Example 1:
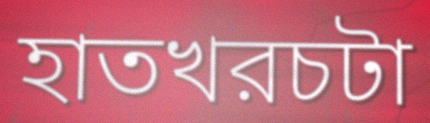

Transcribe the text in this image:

হাতখরচটা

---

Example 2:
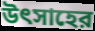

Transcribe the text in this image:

উৎসাহের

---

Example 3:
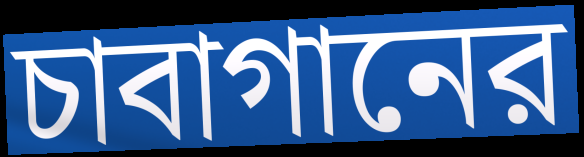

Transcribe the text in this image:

চাবাগানের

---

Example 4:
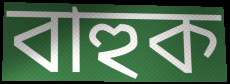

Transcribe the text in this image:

বাহুক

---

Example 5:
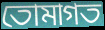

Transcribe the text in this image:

তোমাগত